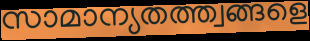
സാമാന്യതത്ത്വങ്ങളെ